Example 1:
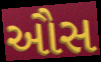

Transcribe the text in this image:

ઔસ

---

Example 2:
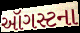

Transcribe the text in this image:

ઑગસ્ટના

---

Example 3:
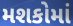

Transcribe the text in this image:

મશકોમાં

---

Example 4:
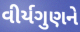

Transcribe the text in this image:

વીર્યગુણને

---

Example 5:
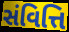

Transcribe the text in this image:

સંવિત્તિ